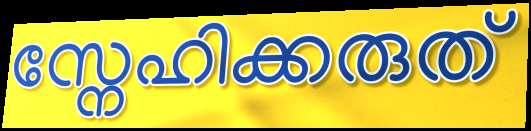
സ്നേഹിക്കരുത്